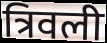
त्रिवली